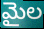
మైల